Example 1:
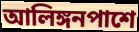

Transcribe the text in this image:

আলিঙ্গনপাশে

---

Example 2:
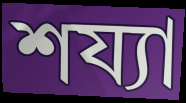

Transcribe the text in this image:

শয্যা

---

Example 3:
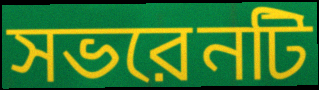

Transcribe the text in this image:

সভরেনটি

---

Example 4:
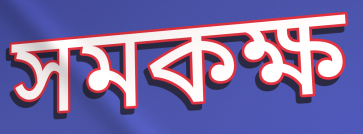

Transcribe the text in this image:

সমকক্ষ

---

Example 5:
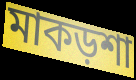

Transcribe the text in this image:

মাকড়শা